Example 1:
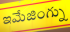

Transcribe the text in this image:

ఇమేజింగ్ను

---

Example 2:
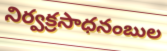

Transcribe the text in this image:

నిర్వక్రసాధనంబుల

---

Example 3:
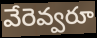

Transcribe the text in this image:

వేరెవ్వరూ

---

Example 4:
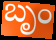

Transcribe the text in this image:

బృం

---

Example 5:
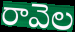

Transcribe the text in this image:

రావెల